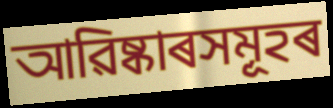
আৱিষ্কাৰসমূহৰ